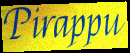
Pirappu